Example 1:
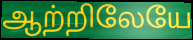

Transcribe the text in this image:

ஆற்றிலேயே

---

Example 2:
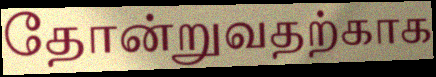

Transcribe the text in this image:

தோன்றுவதற்காக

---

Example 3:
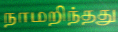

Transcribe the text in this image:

நாமறிந்தது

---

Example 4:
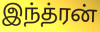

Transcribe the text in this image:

இந்த்ரன்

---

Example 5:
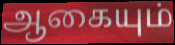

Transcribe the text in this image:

ஆகையும்